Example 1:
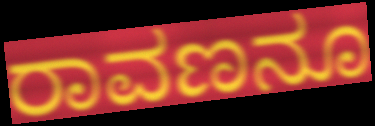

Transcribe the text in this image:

ರಾವಣನೂ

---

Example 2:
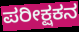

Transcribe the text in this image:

ಪರೀಕ್ಷಕನ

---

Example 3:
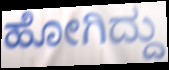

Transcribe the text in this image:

ಹೋಗಿದ್ದು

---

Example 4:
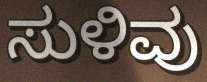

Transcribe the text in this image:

ಸುಳಿವು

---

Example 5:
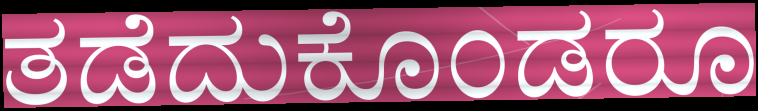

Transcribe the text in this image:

ತಡೆದುಕೊಂಡರೂ